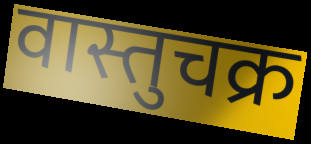
वास्तुचक्र